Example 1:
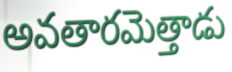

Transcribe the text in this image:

అవతారమెత్తాడు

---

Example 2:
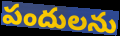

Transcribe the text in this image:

పందులను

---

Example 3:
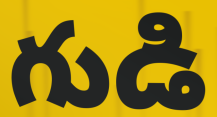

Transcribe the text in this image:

గుడి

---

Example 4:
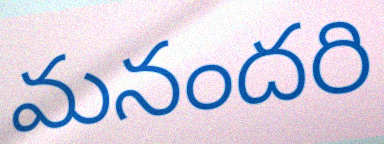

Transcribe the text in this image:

మనందరి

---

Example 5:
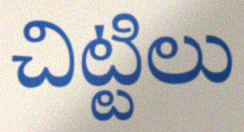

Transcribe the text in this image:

చిట్టిలు